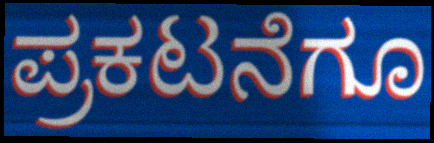
ಪ್ರಕಟನೆಗೂ